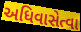
અધિવાસેત્વા